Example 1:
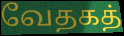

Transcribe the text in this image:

வேதகத்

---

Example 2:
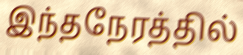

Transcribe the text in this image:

இந்தநேரத்தில்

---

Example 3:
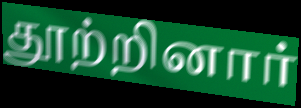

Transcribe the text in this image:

தூற்றினார்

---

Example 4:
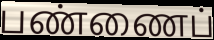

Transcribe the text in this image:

பண்ணைப்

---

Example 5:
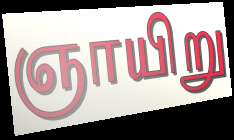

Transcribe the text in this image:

ஞாயிறு